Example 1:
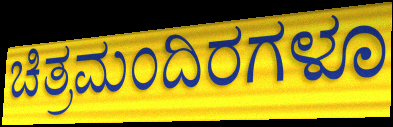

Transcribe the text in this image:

ಚಿತ್ರಮಂದಿರಗಳೂ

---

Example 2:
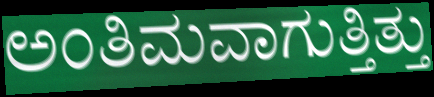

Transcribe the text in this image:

ಅಂತಿಮವಾಗುತ್ತಿತ್ತು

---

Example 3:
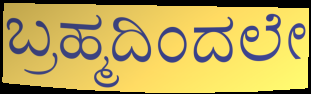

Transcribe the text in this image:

ಬ್ರಹ್ಮದಿಂದಲೇ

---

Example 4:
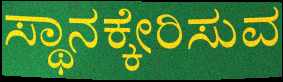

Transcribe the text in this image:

ಸ್ಥಾನಕ್ಕೇರಿಸುವ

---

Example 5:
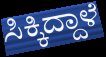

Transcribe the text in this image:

ಸಿಕ್ಕಿದ್ದಾಳೆ